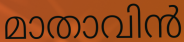
മാതാവിൻ